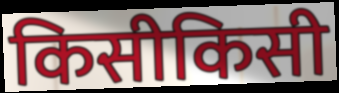
किसीकिसी